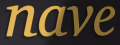
nave